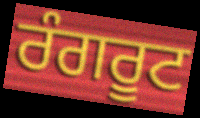
ਰੰਗਰੂਟ